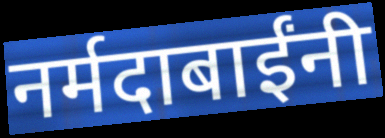
नर्मदाबाईंनी